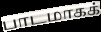
பாடமாகக்